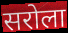
सरोला